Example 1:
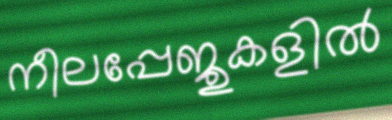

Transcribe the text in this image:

നീലപ്പേജുകളിൽ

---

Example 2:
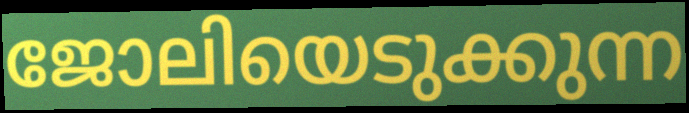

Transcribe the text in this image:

ജോലിയെടുക്കുന്ന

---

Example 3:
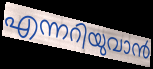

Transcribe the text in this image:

എന്നറിയുവാൻ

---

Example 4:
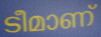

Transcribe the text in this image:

ടീമാണ്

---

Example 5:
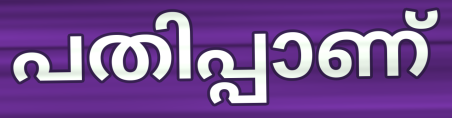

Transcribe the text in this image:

പതിപ്പാണ്